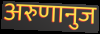
अरुणानुज